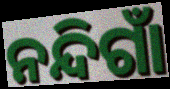
ନନ୍ଦିଗାଁ